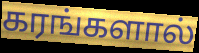
கரங்களால்